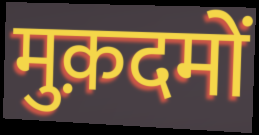
मुक़दमों